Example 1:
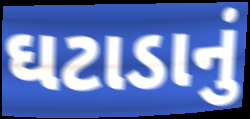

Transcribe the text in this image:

ઘટાડાનું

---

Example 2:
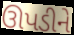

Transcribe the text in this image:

ઊપડીને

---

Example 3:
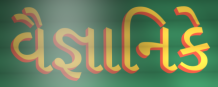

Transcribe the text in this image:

વૈજ્ઞાનિકે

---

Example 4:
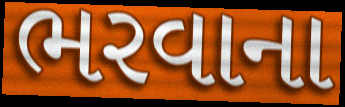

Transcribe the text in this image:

ભરવાના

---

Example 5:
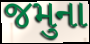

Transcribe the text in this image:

જમુના